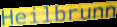
Heilbrunn